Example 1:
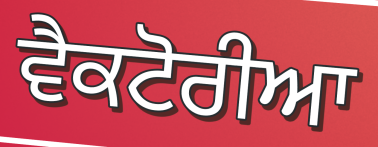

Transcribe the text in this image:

ਵੈਕਟੋਰੀਆ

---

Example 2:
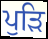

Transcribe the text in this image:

ਪੁੜਿ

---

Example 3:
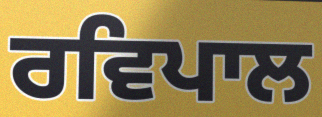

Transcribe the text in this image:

ਰਵਿਪਾਲ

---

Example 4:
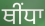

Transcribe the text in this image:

ਥੀਂਧਾ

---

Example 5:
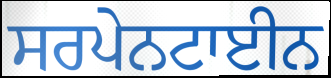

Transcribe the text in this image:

ਸਰਪੇਨਟਾਈਨ